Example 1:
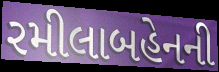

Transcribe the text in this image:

રમીલાબહેનની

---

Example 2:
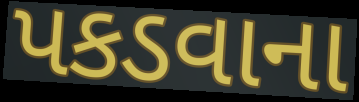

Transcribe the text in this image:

પકડવાના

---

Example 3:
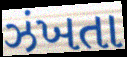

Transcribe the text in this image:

ઝંખતા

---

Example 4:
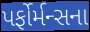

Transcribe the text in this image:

પર્ફોર્મન્સના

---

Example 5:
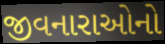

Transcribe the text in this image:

જીવનારાઓનો